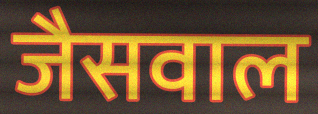
जैसवाल